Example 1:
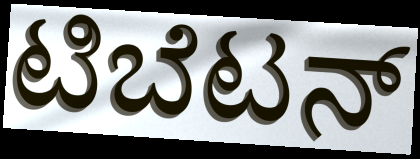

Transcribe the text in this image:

ಟಿಬೆಟನ್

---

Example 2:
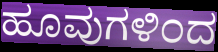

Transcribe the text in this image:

ಹೂವುಗಳಿಂದ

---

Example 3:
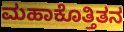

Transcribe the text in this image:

ಮಹಾಕೊತ್ತಿತನ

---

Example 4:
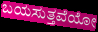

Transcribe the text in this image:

ಬಯಸುತ್ತವೆಯೋ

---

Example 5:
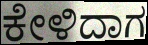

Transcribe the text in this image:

ಕೇಳಿದಾಗ